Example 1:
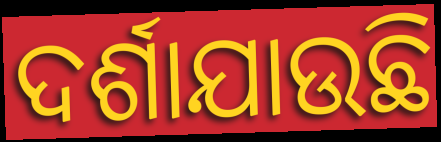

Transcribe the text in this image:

ଦର୍ଶାଯାଉଛି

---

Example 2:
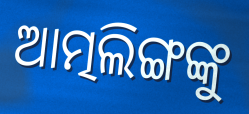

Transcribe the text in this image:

ଆତ୍ମଲିଙ୍ଗଙ୍କୁ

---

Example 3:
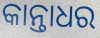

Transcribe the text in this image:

କାନ୍ତାଧର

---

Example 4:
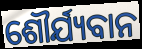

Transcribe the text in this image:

ଶୌର୍ଯ୍ୟବାନ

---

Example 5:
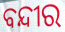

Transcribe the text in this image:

ବନ୍ଦୀର